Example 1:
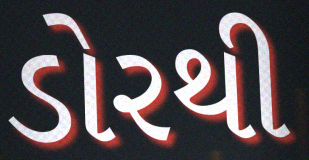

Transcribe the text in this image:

ડોરથી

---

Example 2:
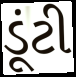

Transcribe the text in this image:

ડૂંટી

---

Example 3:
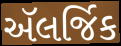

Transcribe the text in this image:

ઍલર્જિક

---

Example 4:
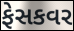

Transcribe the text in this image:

ફેસકવર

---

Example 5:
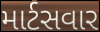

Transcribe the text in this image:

માર્ટસવાર